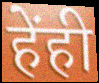
हेंही